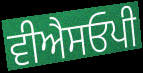
ਵੀਐਸਓਪੀ